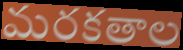
మరకతాల